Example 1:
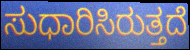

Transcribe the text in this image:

ಸುಧಾರಿಸಿರುತ್ತದೆ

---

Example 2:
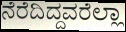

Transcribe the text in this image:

ನೆರೆದಿದ್ದವರೆಲ್ಲಾ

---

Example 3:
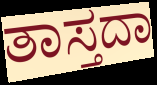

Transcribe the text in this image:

ತಾಸ್ತದಾ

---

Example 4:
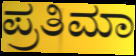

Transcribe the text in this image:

ಪ್ರತಿಮಾ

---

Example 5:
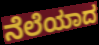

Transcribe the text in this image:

ನೆಲೆಯಾದ